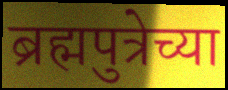
ब्रह्मपुत्रेच्या